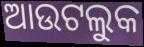
ଆଉଟଲୁକ